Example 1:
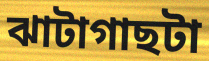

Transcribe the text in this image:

ঝাটাগাছটা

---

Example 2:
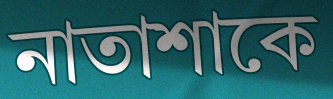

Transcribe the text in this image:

নাতাশাকে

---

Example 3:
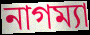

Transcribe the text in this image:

নাগম্যা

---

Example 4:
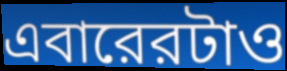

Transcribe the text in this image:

এবারেরটাও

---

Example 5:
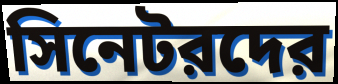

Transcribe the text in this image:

সিনেটরদের